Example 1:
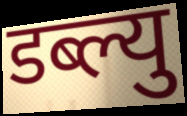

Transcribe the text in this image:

डब्ल्यु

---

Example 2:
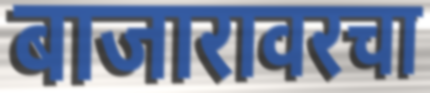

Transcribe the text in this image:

बाजारावरचा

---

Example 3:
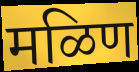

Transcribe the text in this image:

मळिण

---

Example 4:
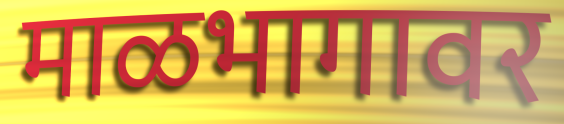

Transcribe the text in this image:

माळभागावर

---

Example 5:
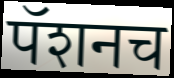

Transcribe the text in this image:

पॅशनच